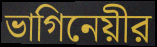
ভাগিনেয়ীর